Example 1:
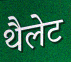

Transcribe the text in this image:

थैलेट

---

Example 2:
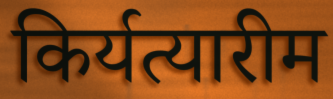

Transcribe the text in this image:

किर्यत्यारीम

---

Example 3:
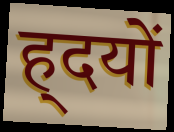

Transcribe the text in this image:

ह्दयों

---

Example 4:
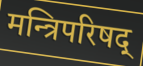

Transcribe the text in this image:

मन्त्रिपरिषद्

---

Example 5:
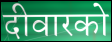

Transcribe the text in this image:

दीवारको